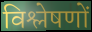
विश्लेषणों